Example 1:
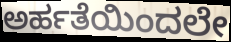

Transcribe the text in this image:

ಅರ್ಹತೆಯಿಂದಲೇ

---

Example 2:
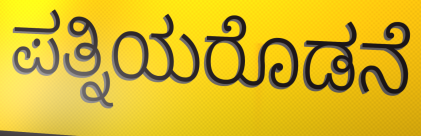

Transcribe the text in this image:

ಪತ್ನಿಯರೊಡನೆ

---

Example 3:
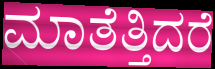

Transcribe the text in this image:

ಮಾತೆತ್ತಿದರೆ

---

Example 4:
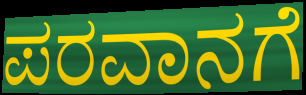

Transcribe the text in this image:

ಪರವಾನಗೆ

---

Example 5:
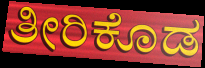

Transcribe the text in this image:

ತೀರಿಕೊಡ